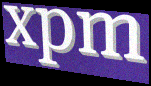
xpm